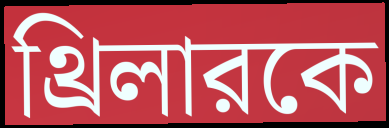
থ্রিলারকে